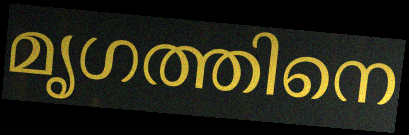
മൃഗത്തിനെ